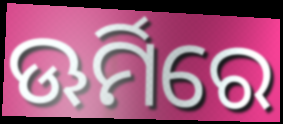
ଊର୍ମିରେ